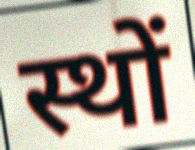
स्थों